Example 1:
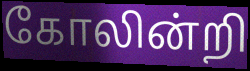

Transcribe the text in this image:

கோலின்றி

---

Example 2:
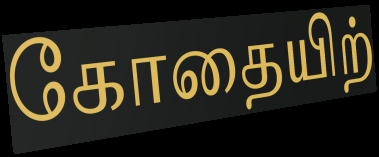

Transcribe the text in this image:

கோதையிற்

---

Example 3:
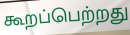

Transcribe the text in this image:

கூறப்பெற்றது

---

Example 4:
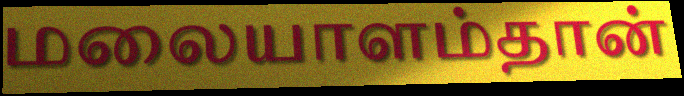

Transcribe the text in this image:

மலையாளம்தான்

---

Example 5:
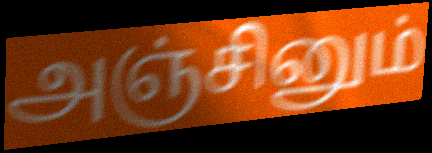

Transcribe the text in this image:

அஞ்சினும்